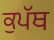
ਕੁਪੱਥ